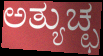
ಅತ್ಯುಚ್ಛ